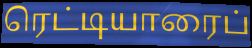
ரெட்டியாரைப்